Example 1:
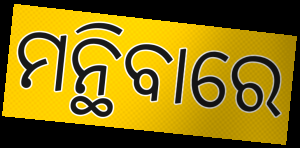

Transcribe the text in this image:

ମନ୍ଥିବାରେ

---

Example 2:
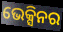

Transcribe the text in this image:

ଭେକ୍ସିନର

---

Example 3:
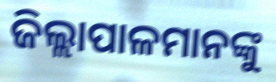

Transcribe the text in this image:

ଜିଲ୍ଲାପାଳମାନଙ୍କୁ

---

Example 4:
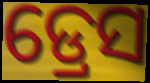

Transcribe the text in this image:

ଡ୍ରେସ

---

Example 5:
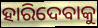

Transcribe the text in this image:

ହାରିଦେବାକୁ